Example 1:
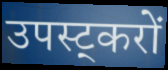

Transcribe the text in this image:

उपस्ट्करों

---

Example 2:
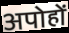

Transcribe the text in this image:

अपोहों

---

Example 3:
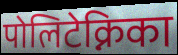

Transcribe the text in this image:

पोलिटेक्निका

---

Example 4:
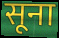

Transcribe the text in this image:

सूना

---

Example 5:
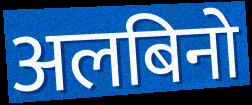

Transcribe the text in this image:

अलबिनो